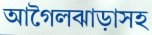
আগৈলঝাড়াসহ